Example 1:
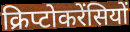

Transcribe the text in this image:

क्रिप्टोकरेंसियों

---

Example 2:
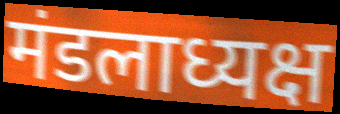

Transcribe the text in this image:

मंडलाध्यक्ष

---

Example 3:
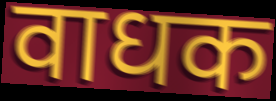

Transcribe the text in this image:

वाधक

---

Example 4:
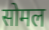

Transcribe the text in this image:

सोमल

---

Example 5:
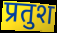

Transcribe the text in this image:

प्रतुश